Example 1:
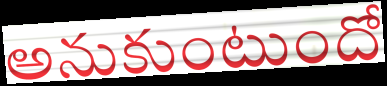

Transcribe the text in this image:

అనుకుంటుందో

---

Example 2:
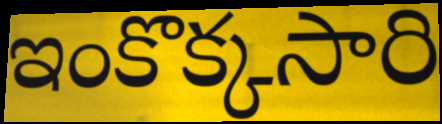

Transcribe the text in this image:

ఇంకొక్కసారి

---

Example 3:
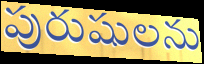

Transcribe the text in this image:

పురుషులను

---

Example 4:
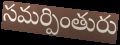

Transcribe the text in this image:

సమర్పింతురు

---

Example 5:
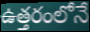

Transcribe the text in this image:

ఉత్తరంలోనే